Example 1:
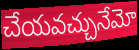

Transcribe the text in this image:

చేయవచ్చునేమో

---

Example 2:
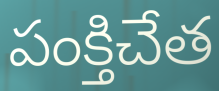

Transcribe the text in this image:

పంక్తిచేత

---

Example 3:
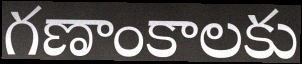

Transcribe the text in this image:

గణాంకాలకు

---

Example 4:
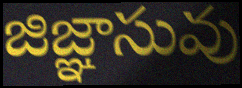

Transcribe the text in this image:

జిజ్ఞాసువు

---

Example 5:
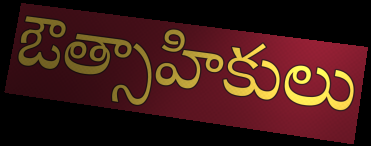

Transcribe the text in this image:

ఔత్సాహికులు